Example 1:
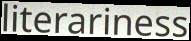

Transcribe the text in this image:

literariness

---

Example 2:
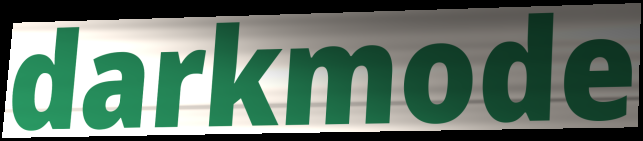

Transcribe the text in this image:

darkmode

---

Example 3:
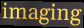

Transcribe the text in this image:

imaging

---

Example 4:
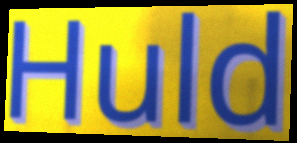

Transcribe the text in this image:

Huld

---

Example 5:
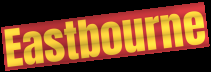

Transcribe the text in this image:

Eastbourne